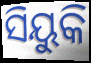
ସିୟୁକି